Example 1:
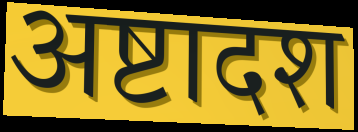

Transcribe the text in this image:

अष्टादश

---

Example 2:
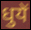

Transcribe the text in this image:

धुयें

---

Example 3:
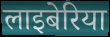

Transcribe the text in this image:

लाइबेरिया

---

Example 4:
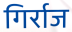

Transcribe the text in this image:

गिर्राज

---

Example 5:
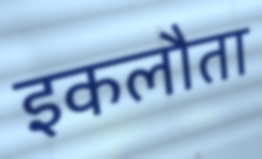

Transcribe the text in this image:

इकलौता